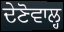
ਦੇਣੋਵਾਲ੍ਹ